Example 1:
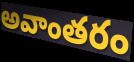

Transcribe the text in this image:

అవాంతరం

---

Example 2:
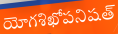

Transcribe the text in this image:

యోగశిఖోపనిషత్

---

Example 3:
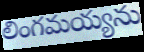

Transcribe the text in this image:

లింగమయ్యను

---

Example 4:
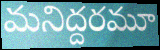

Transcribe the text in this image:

మనిద్దరమూ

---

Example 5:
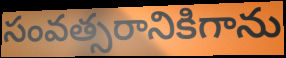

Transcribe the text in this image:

సంవత్సరానికిగాను